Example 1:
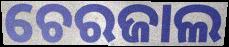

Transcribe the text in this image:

ଚେରଜାଲ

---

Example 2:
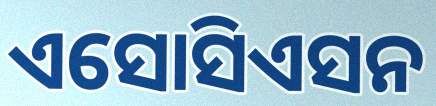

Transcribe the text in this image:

ଏସୋସିଏସନ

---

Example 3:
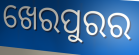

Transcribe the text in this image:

ଖେରପୁରର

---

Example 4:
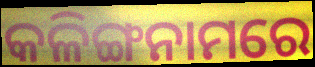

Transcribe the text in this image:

କଳିଙ୍ଗନାମରେ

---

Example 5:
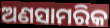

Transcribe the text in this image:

ଅଣସାମରିକ